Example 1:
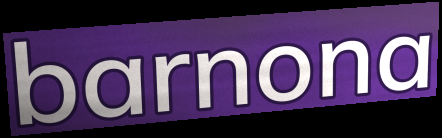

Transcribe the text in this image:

barnona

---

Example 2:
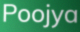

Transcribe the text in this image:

Poojya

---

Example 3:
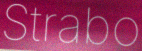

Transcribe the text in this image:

Strabo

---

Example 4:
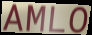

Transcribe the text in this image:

AMLO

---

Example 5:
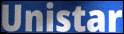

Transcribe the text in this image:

Unistar